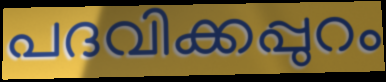
പദവിക്കപ്പുറം